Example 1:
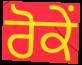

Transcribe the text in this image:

ਰੋਕੇਂ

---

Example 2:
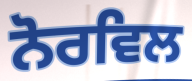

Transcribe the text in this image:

ਨੋਰਵਿਲ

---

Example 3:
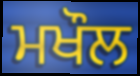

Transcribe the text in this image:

ਮਖੌਲ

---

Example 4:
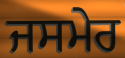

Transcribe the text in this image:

ਜਸਮੇਰ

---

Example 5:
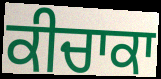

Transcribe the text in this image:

ਕੀਚਾਕਾ